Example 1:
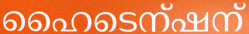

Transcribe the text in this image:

ഹൈടെന്ഷന്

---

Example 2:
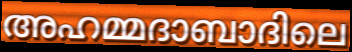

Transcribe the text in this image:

അഹമ്മദാബാദിലെ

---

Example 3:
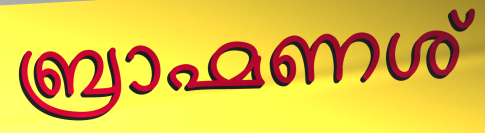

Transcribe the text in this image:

ബ്രാഹ്മണശ്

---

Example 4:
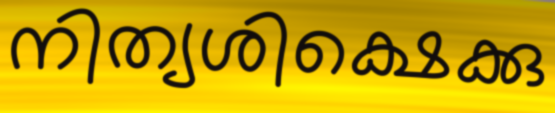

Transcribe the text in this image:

നിത്യശിക്ഷെക്കു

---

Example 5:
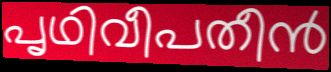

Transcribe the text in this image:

പൃഥിവീപതീൻ